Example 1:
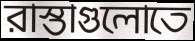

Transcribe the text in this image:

রাস্তাগুলোতে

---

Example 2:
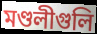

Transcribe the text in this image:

মণ্ডলীগুলি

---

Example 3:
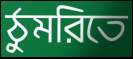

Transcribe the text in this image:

ঠুমরিতে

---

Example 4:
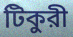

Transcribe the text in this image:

টিকুরী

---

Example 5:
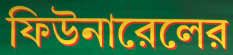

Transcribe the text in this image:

ফিউনারেলের